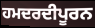
ਹਮਦਰਦੀਪੂਰਨ